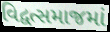
વિદ્વત્સમાજમાં